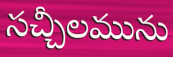
సచ్చీలమును